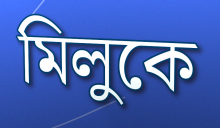
মিলুকে